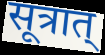
सूत्रात्